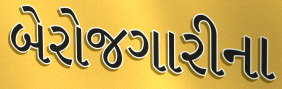
બેરોજગારીના